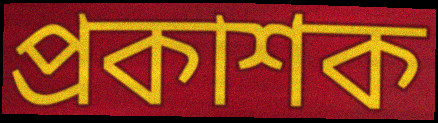
প্ৰকাশক